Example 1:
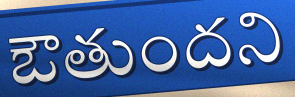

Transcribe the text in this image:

ఔతుందని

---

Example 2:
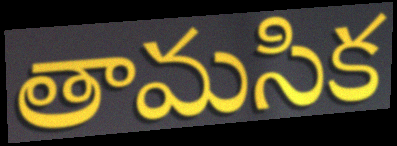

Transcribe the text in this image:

తామసిక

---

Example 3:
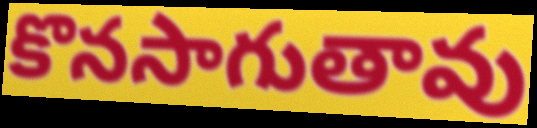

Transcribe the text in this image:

కొనసాగుతావు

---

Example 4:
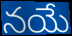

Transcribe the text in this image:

నయే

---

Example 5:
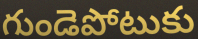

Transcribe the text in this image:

గుండెపోటుకు